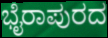
ಭೈರಾಪುರದ